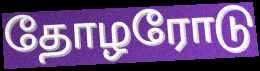
தோழரோடு